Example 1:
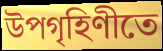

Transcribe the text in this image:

উপগৃহিণীতে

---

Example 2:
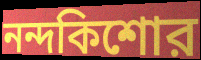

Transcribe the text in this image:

নন্দকিশোর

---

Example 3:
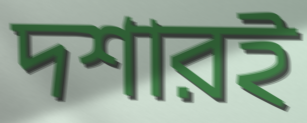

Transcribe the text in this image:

দশারই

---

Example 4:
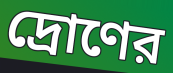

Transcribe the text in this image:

দ্রোণের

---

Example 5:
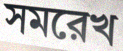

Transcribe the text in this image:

সমরেখ